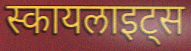
स्कायलाइट्स